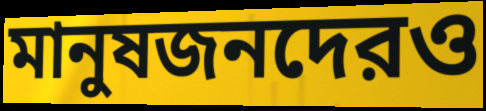
মানুষজনদেরও